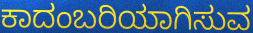
ಕಾದಂಬರಿಯಾಗಿಸುವ